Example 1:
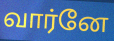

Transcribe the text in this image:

வார்னே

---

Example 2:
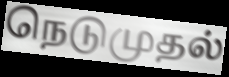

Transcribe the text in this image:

நெடுமுதல்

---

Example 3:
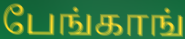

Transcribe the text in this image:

பேங்காங்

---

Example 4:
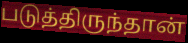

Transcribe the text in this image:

படுத்திருந்தான்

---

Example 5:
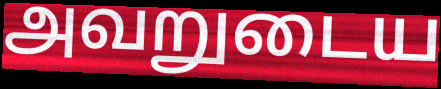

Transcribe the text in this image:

அவறுடைய